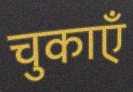
चुकाएँ